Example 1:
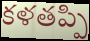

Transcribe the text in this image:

కళతప్పి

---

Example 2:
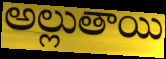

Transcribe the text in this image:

అల్లుతాయి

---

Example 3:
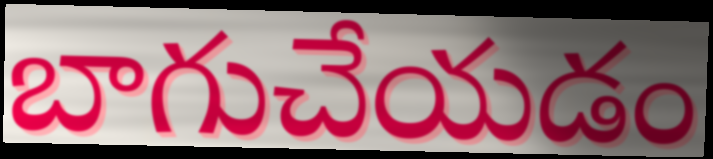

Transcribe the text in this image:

బాగుచేయడం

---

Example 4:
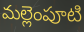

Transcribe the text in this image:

మల్లెంపూటి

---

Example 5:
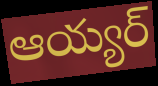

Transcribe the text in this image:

ఆయ్యర్